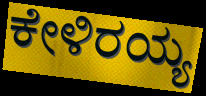
ಕೇಳಿರಯ್ಯ